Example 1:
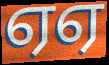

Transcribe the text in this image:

ஏஏ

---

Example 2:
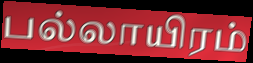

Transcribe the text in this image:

பல்லாயிரம்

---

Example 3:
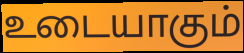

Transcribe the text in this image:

உடையாகும்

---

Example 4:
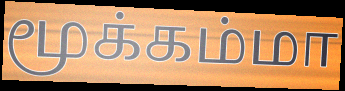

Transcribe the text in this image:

மூக்கம்மா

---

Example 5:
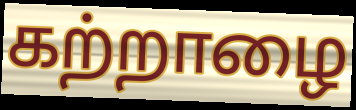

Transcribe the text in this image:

கற்றாழை